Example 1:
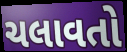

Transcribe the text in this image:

ચલાવતો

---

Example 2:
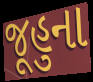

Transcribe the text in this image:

જૂહુના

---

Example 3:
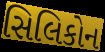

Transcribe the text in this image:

સિલિકોન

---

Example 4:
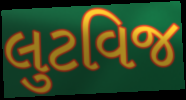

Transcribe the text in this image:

લુટવિજ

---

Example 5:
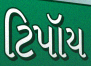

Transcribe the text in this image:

ટિપૉય